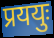
प्रययुः